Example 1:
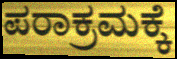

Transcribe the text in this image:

ಪರಾಕ್ರಮಕ್ಕೆ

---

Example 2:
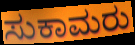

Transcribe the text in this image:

ಸುಕಾಮರು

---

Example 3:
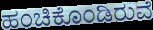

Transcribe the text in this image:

ಹಂಚಿಕೊಂಡಿರುವೆ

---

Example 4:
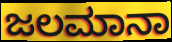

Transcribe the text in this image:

ಜಲಮಾನಾ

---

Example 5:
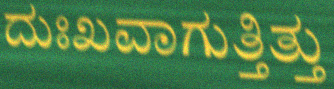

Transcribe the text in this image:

ದುಃಖವಾಗುತ್ತಿತ್ತು